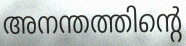
അനന്തത്തിന്റെ